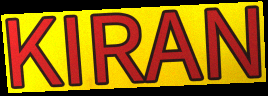
KIRAN